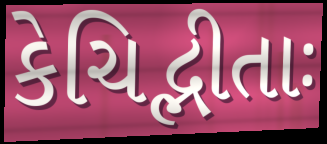
કેચિદ્ભીતાઃ